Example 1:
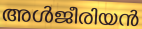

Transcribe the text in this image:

അൾജീരിയൻ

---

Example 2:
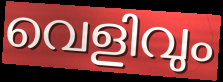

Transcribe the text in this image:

വെളിവും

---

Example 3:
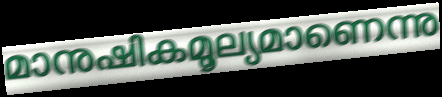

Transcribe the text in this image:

മാനുഷികമൂല്യമാണെന്നു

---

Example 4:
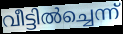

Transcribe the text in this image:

വീട്ടിൽച്ചെന്ന്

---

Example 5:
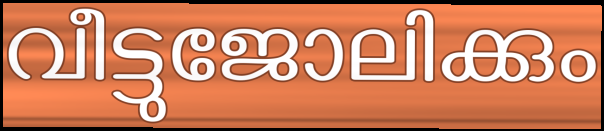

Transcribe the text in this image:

വീട്ടുജോലിക്കും